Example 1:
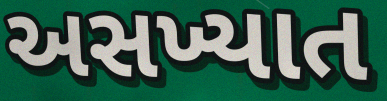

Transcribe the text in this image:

અસખ્યાત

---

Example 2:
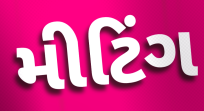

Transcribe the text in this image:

મીટિંગ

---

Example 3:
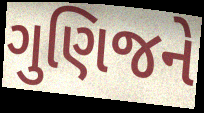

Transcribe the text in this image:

ગુણિજને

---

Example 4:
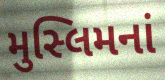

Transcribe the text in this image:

મુસ્લિમનાં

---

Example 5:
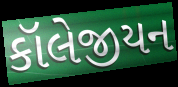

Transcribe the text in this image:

કૉલેજીયન